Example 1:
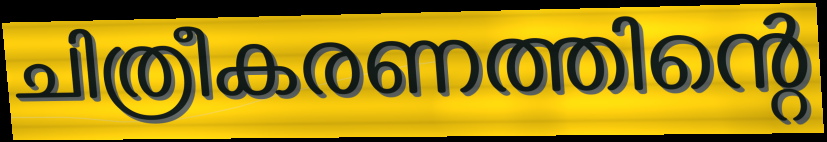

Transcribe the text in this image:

ചിത്രീകരണത്തിന്റെ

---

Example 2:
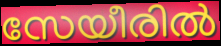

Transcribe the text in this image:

സേയീരിൽ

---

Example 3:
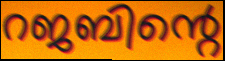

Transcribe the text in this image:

റജബിന്റെ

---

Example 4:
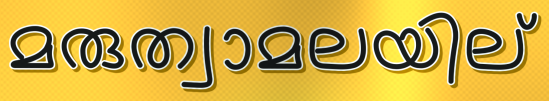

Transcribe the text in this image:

മരുത്വാമലയില്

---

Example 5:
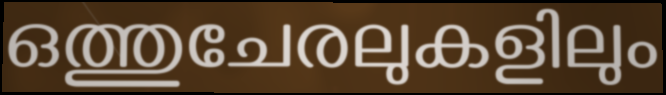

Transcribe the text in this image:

ഒത്തുചേരലുകളിലും